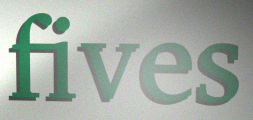
fives